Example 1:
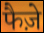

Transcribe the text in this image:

फैज़े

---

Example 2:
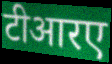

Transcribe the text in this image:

टीआरए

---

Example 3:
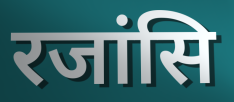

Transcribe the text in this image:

रजांसि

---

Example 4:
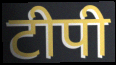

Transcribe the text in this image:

टीपी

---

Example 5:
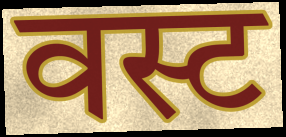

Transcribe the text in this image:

वस्ट